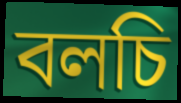
বলচি